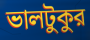
ভালটুকুর